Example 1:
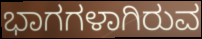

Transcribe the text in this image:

ಭಾಗಗಳಾಗಿರುವ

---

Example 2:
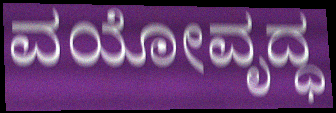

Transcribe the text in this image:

ವಯೋವೃದ್ಧ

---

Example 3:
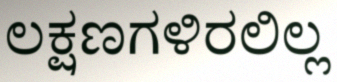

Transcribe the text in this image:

ಲಕ್ಷಣಗಳಿರಲಿಲ್ಲ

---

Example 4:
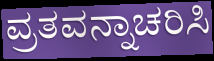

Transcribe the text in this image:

ವ್ರತವನ್ನಾಚರಿಸಿ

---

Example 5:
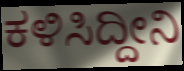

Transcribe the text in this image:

ಕಳಿಸಿದ್ದೀನಿ